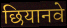
छियानवे